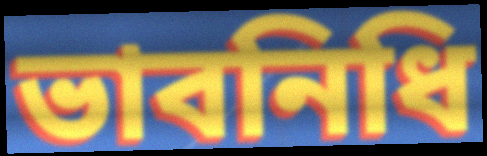
ভাবনিধি